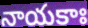
నాయకాః